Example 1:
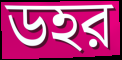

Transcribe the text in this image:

ডহর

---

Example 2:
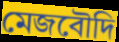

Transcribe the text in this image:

মেজবৌদি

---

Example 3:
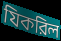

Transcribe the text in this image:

যিকরিল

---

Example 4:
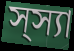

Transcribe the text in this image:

স্স্যা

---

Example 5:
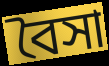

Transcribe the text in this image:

বৈসা